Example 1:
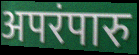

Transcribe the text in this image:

अपरंपारु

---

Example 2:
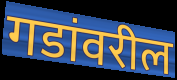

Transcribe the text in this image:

गडांवरील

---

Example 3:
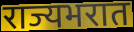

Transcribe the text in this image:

राज्यभरात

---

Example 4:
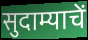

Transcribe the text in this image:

सुदाम्याचें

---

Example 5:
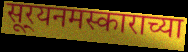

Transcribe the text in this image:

सूर्यनमस्काराच्या